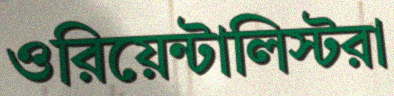
ওরিয়েন্টালিস্টরা